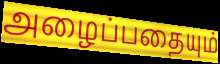
அழைப்பதையும்